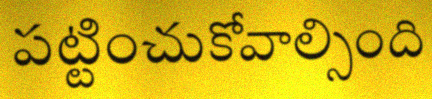
పట్టించుకోవాల్సింది